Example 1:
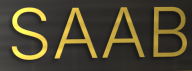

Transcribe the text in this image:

SAAB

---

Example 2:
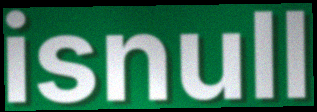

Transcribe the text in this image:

isnull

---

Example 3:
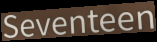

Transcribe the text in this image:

Seventeen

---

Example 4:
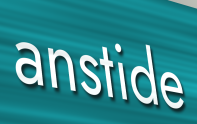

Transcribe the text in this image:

anstide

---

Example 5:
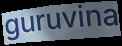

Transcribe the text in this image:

guruvina